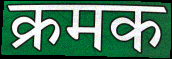
क्रमक